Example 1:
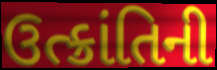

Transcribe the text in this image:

ઉત્ક્રાંતિની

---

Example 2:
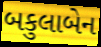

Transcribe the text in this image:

બકુલાબેન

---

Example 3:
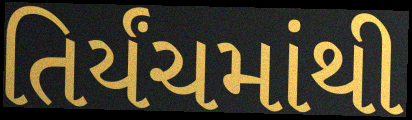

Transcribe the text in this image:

તિર્યંચમાંથી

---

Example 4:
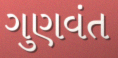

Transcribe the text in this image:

ગુણવંત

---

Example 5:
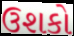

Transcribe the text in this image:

ઉશકો